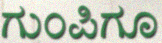
ಗುಂಪಿಗೂ